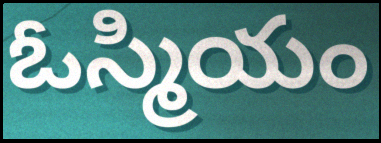
ఓస్మియం